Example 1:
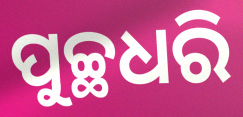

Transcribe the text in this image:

ପୁଚ୍ଛଧରି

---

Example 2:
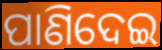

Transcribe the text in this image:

ପାଣିଦେଇ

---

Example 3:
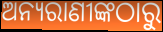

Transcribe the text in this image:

ଅନ୍ୟରାଣୀଙ୍କଠାରୁ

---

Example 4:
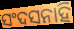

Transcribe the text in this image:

ସଂଦସନାହି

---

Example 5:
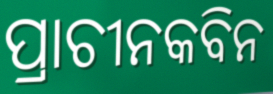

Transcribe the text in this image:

ପ୍ରାଚୀନକବିନ